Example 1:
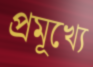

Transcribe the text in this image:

প্ৰমূখ্যে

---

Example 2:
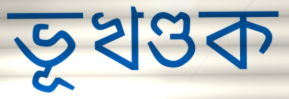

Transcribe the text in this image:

ভূখণ্ডক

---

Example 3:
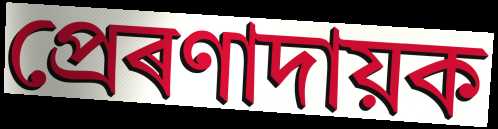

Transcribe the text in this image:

প্ৰেৰণাদায়ক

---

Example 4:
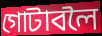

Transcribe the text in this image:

গোটাবলৈ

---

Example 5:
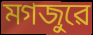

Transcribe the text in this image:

মগজুৱে